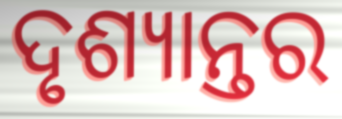
ଦୃଶ୍ୟାନ୍ତର